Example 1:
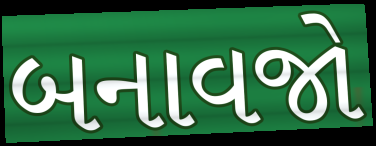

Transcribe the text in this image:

બનાવજો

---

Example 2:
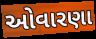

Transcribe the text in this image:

ઓવારણા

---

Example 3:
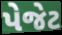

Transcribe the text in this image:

પેજેટ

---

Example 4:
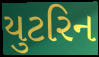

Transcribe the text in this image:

યુટરિન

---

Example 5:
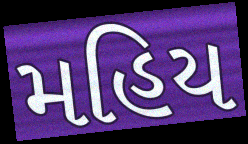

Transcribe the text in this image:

મહિય